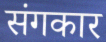
संगकार